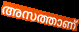
അസത്താണ്